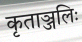
कृताञ्जलिः